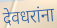
देवधरांना